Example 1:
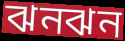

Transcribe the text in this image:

ঝনঝন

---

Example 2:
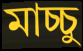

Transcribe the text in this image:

মাচ্চু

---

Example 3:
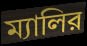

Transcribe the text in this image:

ম্যালির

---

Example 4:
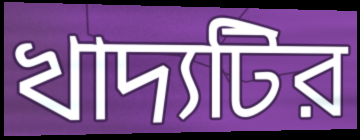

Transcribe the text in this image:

খাদ্যটির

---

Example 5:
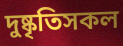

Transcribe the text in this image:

দুষ্কৃতিসকল